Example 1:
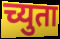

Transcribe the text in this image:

च्युता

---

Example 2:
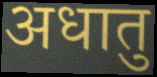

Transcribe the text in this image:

अधातु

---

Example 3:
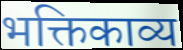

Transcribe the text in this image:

भक्तिकाव्य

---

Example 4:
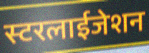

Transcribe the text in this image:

स्टरलाईजेशन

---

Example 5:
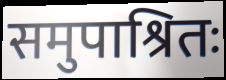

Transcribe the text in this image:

समुपाश्रितः